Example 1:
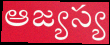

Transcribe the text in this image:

ఆజ్యస్య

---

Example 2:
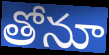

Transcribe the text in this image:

తోనూ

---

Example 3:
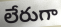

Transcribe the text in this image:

లేరుగా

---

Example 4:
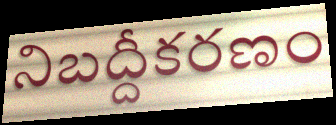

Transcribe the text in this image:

నిబద్దీకరణం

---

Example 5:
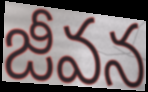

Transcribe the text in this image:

జీవన